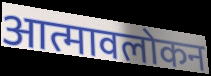
आत्‍मावलोकन